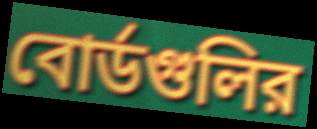
বোর্ডগুলির